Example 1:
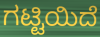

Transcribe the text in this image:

ಗಟ್ಟಿಯಿದೆ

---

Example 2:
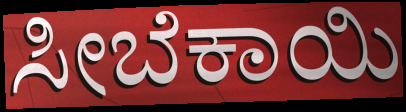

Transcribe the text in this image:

ಸೀಬೆಕಾಯಿ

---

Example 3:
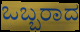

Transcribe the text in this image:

ಒಬ್ಬರಾದ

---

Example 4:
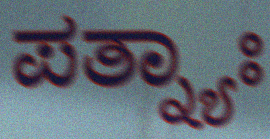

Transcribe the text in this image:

ಪತ್ನ್ಯಾಃ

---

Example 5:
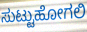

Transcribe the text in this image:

ಸುಟ್ಟುಹೋಗಲಿ